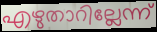
എഴുതാറില്ലേന്ന്